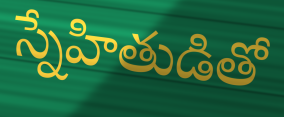
స్నేహితుడితో